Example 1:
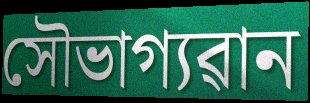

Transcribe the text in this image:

সৌভাগ্যৱান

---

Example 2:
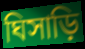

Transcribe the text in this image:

ঘিসাড়ি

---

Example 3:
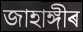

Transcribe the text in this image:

জাহাঙ্গীৰ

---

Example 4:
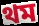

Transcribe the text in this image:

থম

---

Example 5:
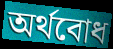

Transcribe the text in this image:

অৰ্থবোধ